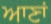
ਆਣਾਂ